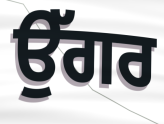
ਉੱਗਰ